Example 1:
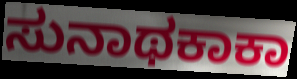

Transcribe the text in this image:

ಸುನಾಥಕಾಕಾ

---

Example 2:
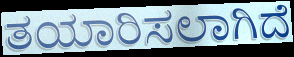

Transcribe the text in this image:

ತಯಾರಿಸಲಾಗಿದೆ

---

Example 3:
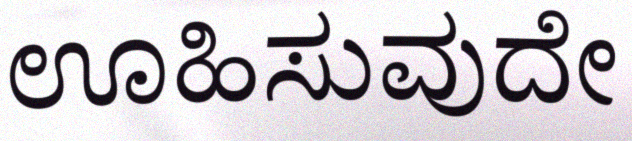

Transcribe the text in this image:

ಊಹಿಸುವುದೇ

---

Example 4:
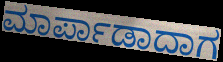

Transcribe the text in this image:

ಮಾರ್ಪಾಡಾದಾಗ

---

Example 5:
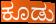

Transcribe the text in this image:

ಕೂಡು